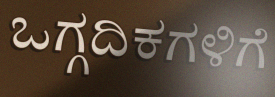
ಒಗ್ಗದಿಕಗಳಿಗೆ